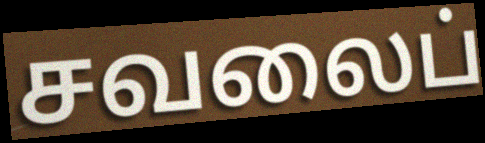
சவலைப்